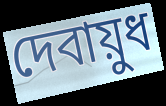
দেবায়ুধ